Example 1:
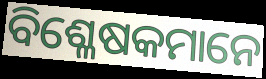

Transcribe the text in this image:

ବିଶ୍ଳେଷକମାନେ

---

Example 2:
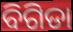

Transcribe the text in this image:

ବିଗିଡା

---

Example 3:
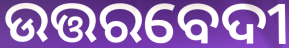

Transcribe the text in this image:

ଉତ୍ତରବେଦୀ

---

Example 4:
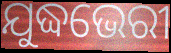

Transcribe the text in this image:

ଯୁଦ୍ଧଭେରୀ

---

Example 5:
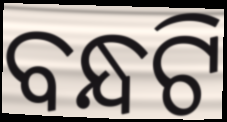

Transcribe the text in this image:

ବନ୍ଧଟି